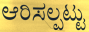
ಆರಿಸಲ್ಪಟ್ಟು